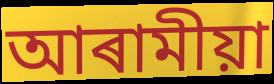
আৰামীয়া